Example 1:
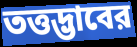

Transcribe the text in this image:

তত্তদ্ভাবের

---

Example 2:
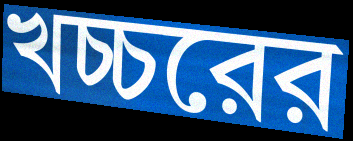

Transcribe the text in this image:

খচ্চরের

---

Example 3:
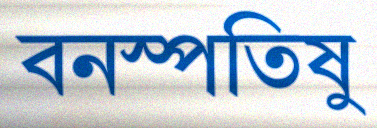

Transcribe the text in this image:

বনস্পতিষু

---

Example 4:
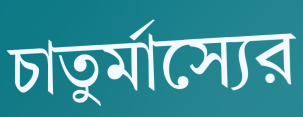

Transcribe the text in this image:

চাতুর্মাস্যের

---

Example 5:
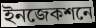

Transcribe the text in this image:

ইনজেকশনে